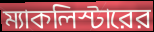
ম্যাকলিস্টারের